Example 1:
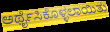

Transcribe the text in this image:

ಅರ್ಥೈಸಿಕೊಳ್ಳಲಾಯಿತು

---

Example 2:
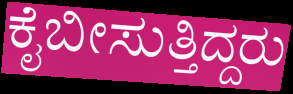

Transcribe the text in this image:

ಕೈಬೀಸುತ್ತಿದ್ದರು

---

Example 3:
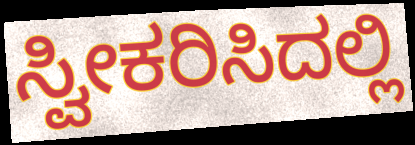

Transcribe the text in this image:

ಸ್ವೀಕರಿಸಿದಲ್ಲಿ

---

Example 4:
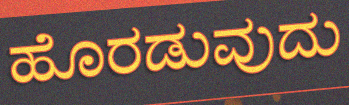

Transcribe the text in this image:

ಹೊರಡುವುದು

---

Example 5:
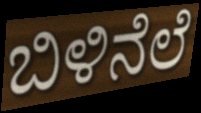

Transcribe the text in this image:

ಬಿಳಿನೆಲೆ